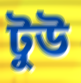
টুউ